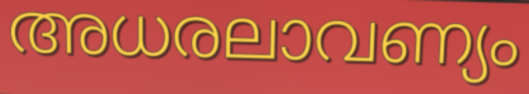
അധരലാവണ്യം